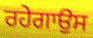
ਰਹੇਗਾਉਸ